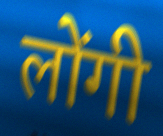
लोंगी